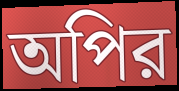
অপির